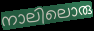
നാലിലൊരു